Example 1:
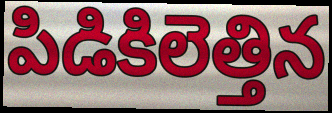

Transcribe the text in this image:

పిడికిలెత్తిన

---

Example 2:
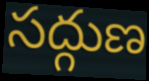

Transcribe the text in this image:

సద్గుణ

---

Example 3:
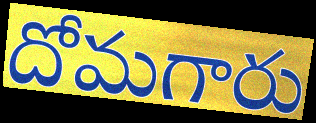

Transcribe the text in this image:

దోమగారు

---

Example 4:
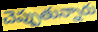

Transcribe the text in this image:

చెప్పుతున్నారు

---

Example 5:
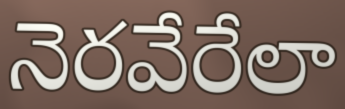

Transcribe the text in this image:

నెరవేరేలా